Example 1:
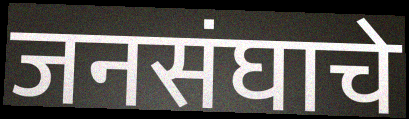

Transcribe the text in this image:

जनसंघाचे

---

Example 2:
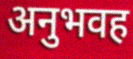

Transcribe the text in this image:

अनुभवह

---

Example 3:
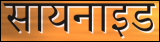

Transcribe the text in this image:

सायनाइड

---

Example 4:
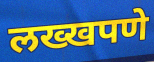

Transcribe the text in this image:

लख्खपणे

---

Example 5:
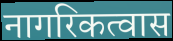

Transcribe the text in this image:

नागरिकत्वास